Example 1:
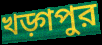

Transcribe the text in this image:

খড়্গপুর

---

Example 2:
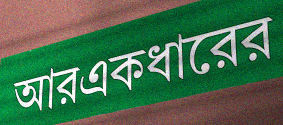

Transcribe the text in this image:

আরএকধারের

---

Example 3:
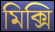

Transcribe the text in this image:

মিক্সি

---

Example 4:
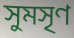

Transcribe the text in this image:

সুমসৃণ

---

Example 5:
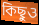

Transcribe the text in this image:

কিছুও